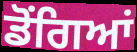
ਡੋਂਗਿਆਂ